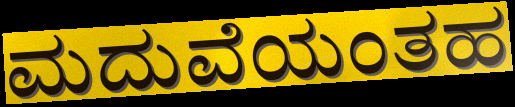
ಮದುವೆಯಂತಹ